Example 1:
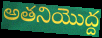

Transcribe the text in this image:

అతనియొద్ద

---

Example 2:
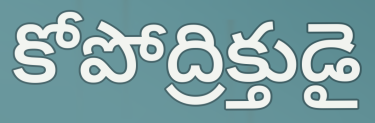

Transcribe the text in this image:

కోపోద్రిక్తుడై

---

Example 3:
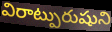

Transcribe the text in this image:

విరాట్పురుషుని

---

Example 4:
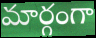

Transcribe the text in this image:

మార్గంగా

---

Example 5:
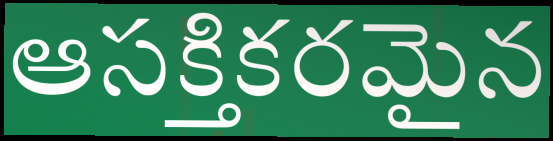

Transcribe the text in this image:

ఆసక్తికరమైన